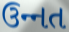
ઉન્‍નત